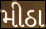
મીઠા